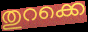
തുറക്കെ